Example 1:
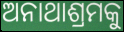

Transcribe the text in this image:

ଅନାଥାଶ୍ରମକୁ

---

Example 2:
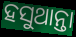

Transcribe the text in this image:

ହସୁଥାନ୍ତା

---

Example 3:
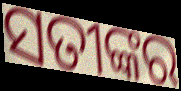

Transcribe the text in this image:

ସତୀଙ୍କର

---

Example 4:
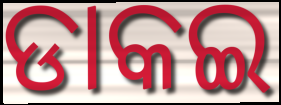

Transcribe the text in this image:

ଡାକଇ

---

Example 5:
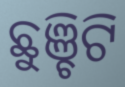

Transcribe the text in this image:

ଛୁଞ୍ଚିଟି